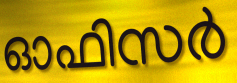
ഓഫിസർ